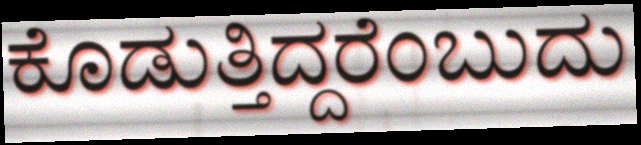
ಕೊಡುತ್ತಿದ್ದರೆಂಬುದು